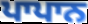
ਪਾਪਾਨ